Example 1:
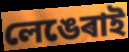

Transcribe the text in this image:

লেঙেৰাই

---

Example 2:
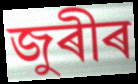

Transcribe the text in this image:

জুৰীৰ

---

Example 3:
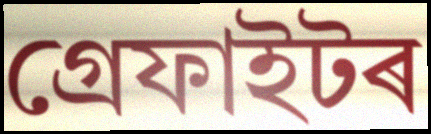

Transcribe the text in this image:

গ্ৰেফাইটৰ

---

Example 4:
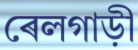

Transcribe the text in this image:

ৰেলগাড়ী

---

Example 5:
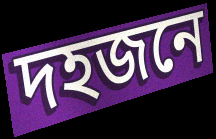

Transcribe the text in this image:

দহজনে